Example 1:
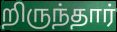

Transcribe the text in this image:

றிருந்தார்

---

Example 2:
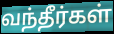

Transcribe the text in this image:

வந்தீர்கள்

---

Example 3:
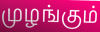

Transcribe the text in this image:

முழங்கும்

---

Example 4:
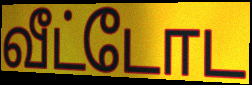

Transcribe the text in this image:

வீட்டோட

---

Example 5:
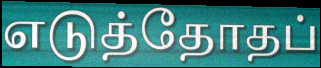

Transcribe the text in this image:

எடுத்தோதப்